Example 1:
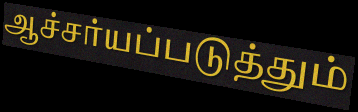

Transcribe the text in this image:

ஆச்சர்யப்படுத்தும்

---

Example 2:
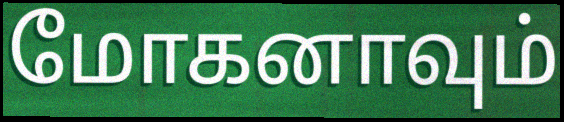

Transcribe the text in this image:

மோகனாவும்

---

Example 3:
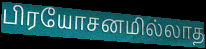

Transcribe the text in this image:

பிரயோசனமில்லாத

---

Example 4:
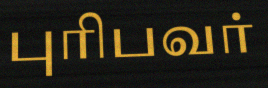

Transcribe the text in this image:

புரிபவர்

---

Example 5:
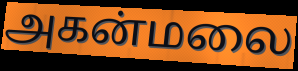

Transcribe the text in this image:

அகன்மலை